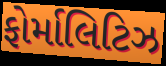
ફોર્માલિટિઝ